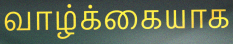
வாழ்க்கையாக